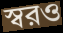
স্বরও